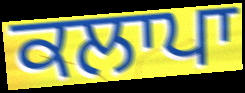
ਕਲਾਪਾ